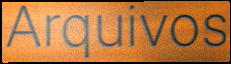
Arquivos